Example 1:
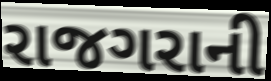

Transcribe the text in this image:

રાજગરાની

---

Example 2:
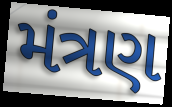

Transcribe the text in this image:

મંત્રણ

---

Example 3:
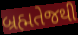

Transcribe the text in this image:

બ્રહ્મતેજથી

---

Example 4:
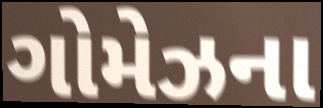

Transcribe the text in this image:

ગોમેઝના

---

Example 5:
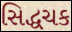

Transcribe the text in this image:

સિદ્ધચક